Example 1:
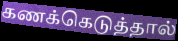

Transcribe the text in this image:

கணக்கெடுத்தால்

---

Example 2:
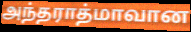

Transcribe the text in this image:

அந்தராத்மாவான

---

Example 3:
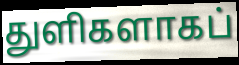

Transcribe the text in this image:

துளிகளாகப்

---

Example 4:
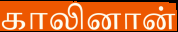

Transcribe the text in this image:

காலினான்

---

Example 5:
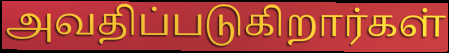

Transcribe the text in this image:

அவதிப்படுகிறார்கள்